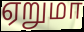
ஏறுமா